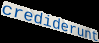
crediderunt